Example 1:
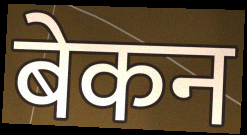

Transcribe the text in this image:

बेकन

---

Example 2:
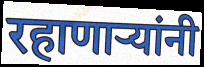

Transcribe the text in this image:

रहाणार्‍यांनी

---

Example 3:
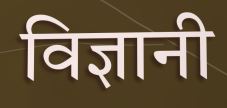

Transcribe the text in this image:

विज्ञानी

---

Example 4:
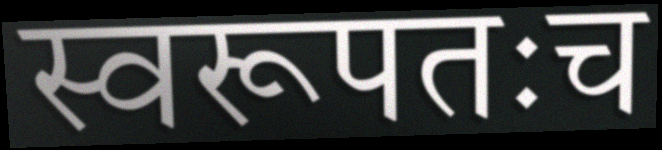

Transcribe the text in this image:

स्वरूपतःच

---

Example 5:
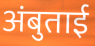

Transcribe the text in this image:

अंबुताई